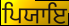
ਪਿਯਾਇ